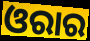
ଓରାର